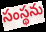
సంస్థను